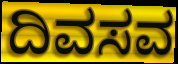
ದಿವಸವ